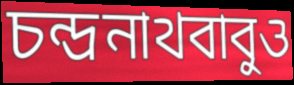
চন্দ্রনাথবাবুও